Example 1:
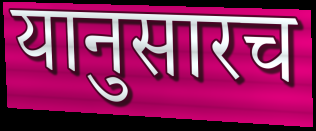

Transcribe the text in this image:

यानुसारच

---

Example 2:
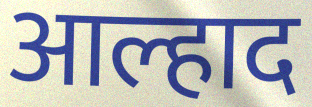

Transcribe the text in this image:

आल्हाद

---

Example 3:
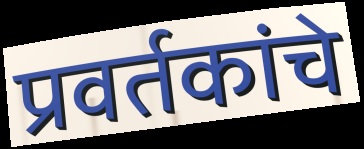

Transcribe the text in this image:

प्रवर्तकांचे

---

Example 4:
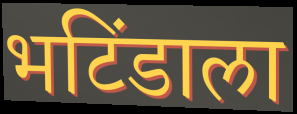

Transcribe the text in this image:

भटिंडाला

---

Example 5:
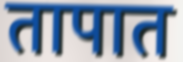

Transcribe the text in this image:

तापात